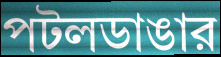
পটলডাঙার